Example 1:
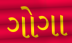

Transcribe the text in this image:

ગોગા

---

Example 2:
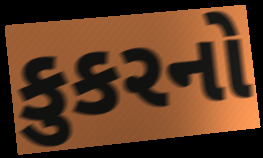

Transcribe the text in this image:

કુકરનો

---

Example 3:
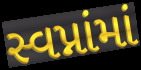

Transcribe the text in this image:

સ્વપ્નાંમાં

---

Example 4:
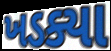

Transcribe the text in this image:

ખડક્યા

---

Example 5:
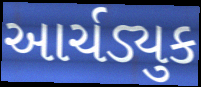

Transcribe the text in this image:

આર્ચડ્યુક